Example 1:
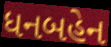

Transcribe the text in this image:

ધનબહેન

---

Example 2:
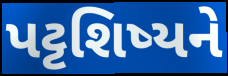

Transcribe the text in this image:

પટ્ટશિષ્યને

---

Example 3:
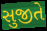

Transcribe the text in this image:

સુજીતે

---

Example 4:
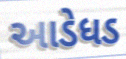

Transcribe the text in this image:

આડેધડ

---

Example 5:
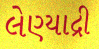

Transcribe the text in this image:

લેણ્યાદ્રી